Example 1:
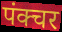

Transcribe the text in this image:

पंक्चर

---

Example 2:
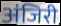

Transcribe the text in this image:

अंजिरी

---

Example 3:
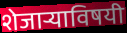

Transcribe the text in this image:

शेजाऱ्याविषयी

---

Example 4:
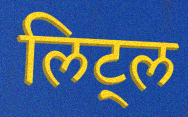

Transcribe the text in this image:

लिट्‌ल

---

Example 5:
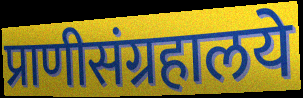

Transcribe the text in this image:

प्राणीसंग्रहालये